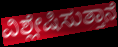
ವಿಶ್ಲೇಷಿಸುತ್ತಾನೆ